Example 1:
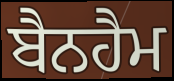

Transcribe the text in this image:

ਬੈਨਹੈਮ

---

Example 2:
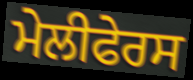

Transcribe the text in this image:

ਮੇਲੀਫੇਰਸ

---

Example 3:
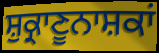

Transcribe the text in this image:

ਸ਼ੁਕ੍ਰਾਣੂਨਾਸ਼ਕਾਂ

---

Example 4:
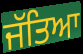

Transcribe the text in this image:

ਜੱਤਿਆ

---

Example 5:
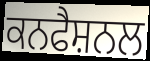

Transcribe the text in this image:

ਕਨਫੈਸ਼ਨਲ